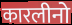
कारलीनो